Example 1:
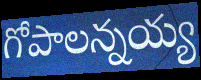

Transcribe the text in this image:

గోపాలన్నయ్య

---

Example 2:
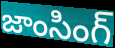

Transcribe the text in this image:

జాంసింగ్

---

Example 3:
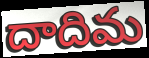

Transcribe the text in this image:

దాదిమ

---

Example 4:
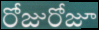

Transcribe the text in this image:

రోజురోజూ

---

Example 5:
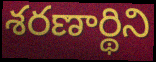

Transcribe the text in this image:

శరణార్థిని